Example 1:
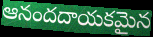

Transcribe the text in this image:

ఆనందదాయకమైన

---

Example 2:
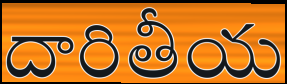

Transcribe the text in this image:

దారితీయ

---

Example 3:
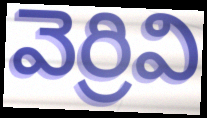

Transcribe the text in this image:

వెర్రివి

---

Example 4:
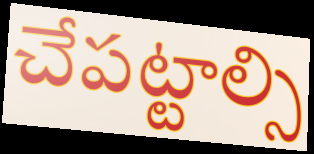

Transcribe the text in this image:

చేపట్టాల్సి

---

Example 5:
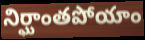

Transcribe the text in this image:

నిర్ఘాంతపోయాం